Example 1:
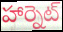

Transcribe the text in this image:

హార్నెట్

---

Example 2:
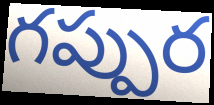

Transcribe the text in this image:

గప్పుర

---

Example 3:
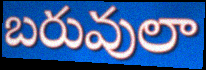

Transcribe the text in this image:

బరువులా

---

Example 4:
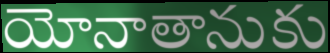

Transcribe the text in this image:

యోనాతానుకు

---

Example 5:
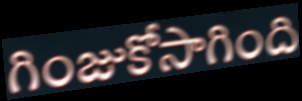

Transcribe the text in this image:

గింజుకోసాగింది